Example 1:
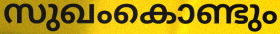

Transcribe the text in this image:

സുഖംകൊണ്ടും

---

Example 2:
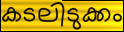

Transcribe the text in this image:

കടലിടുക്കം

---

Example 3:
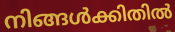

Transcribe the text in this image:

നിങ്ങൾക്കിതിൽ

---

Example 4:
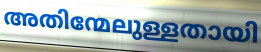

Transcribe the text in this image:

അതിന്മേലുള്ളതായി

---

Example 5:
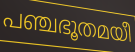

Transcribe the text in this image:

പഞ്ചഭൂതമയീ